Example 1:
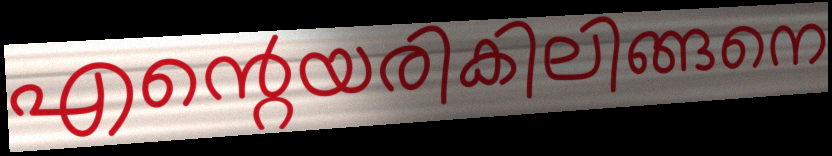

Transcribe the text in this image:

എന്റെയരികിലിങ്ങനെ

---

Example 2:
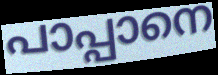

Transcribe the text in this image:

പാപ്പാനെ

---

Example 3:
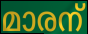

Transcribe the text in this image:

മാരന്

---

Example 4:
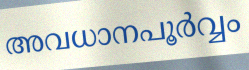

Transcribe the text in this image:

അവധാനപൂർവ്വം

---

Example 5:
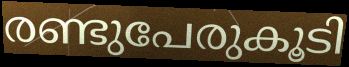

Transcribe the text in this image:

രണ്ടുപേരുകൂടി